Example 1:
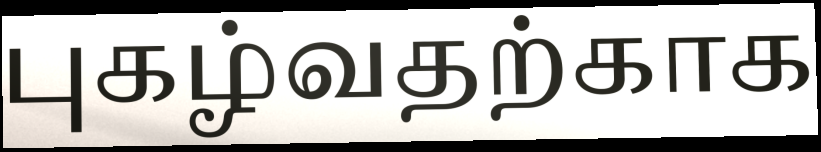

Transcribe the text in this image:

புகழ்வதற்காக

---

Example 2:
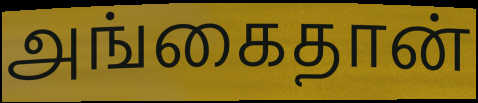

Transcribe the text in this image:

அங்கைதான்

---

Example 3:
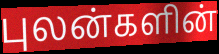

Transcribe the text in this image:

புலன்களின்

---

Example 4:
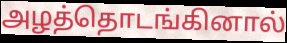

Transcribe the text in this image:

அழத்தொடங்கினால்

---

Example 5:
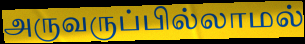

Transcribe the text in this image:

அருவருப்பில்லாமல்